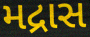
મદ્રાસ